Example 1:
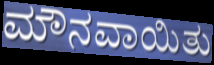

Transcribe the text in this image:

ಮೌನವಾಯಿತು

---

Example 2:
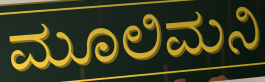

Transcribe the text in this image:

ಮೂಲಿಮನಿ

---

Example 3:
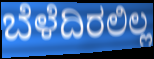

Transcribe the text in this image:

ಬೆಳೆದಿರಲಿಲ್ಲ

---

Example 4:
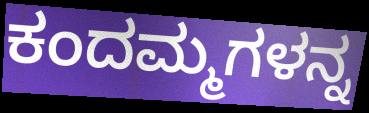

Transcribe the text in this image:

ಕಂದಮ್ಮಗಳನ್ನ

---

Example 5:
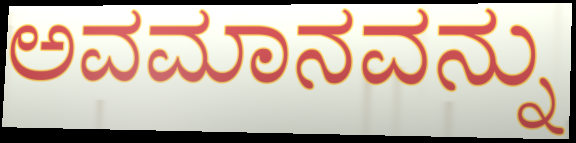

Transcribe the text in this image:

ಅವಮಾನವನ್ನು